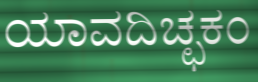
ಯಾವದಿಚ್ಛಕಂ